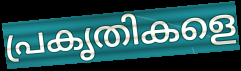
പ്രകൃതികളെ